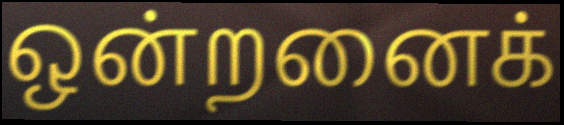
ஒன்றனைக்